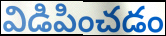
విడిపించడం